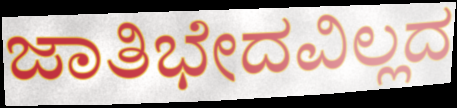
ಜಾತಿಭೇದವಿಲ್ಲದ